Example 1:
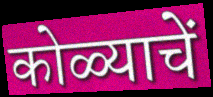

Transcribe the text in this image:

कोळ्याचें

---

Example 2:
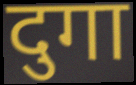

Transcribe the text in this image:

दुगा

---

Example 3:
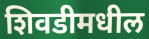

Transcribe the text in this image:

शिवडीमधील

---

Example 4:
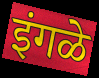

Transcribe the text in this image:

इंगळे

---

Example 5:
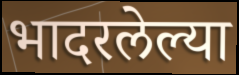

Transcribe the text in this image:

भादरलेल्या